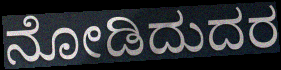
ನೋಡಿದುದರ